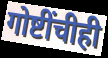
गोष्टींचीही